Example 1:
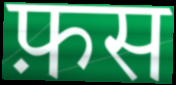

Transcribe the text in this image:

फ़स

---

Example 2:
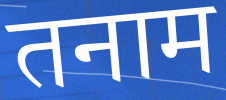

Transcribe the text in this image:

तनाम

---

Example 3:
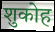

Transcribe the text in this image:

शुकोह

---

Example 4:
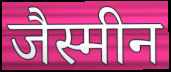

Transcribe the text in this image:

जैस्मीन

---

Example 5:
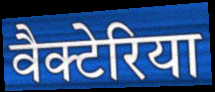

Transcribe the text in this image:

वैक्टेरिया